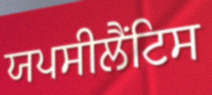
ਯਪਸੀਲੈਂਟਿਸ